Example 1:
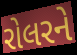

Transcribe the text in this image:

રોલરને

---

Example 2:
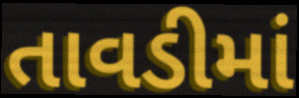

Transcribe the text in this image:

તાવડીમાં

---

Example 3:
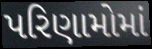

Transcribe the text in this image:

પરિણામોમાં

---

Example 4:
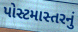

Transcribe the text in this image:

પોસ્ટમાસ્તરનું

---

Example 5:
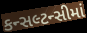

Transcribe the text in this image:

કન્સલ્ટન્સીમાં